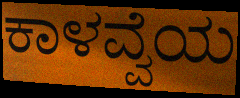
ಕಾಳವ್ವೆಯ